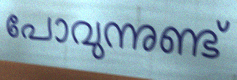
പോവുന്നുണ്ട്